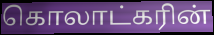
கொலாட்கரின்